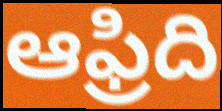
ఆఫ్రిది